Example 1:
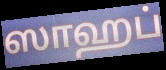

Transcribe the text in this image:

ஸாஹப்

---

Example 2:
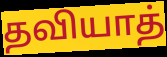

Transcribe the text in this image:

தவியாத்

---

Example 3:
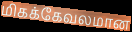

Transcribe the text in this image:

மிகக்கேவலமான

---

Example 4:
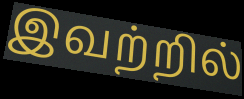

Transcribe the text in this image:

இவற்றில்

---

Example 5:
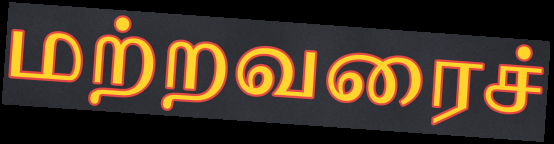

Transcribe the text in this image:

மற்றவரைச்